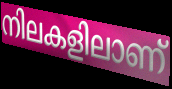
നിലകളിലാണ്